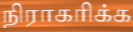
நிராகரிக்க